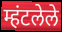
म्हंटलेले